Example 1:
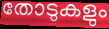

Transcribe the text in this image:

തോടുകളും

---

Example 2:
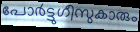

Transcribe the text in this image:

പോർട്ടുഗീസുകാരും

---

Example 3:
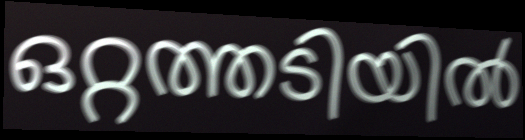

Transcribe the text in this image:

ഒറ്റത്തടിയിൽ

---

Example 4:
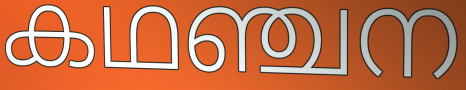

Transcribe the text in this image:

കഥഞ്ചന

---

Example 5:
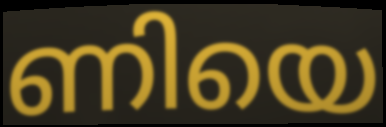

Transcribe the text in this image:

ണിയെ